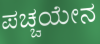
ಪಚ್ಚಯೇನ